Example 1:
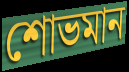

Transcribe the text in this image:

শোভমান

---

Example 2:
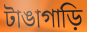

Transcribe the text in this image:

টাঙাগাড়ি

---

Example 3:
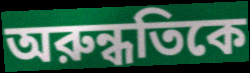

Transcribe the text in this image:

অরুন্ধতিকে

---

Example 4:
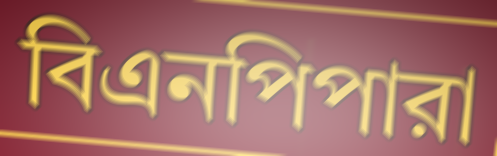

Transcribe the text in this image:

বিএনপিপারা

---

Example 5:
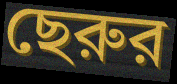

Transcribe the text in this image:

ছেরুর